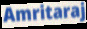
Amritaraj